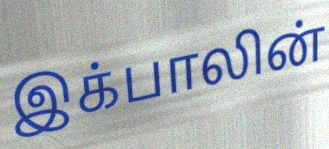
இக்பாலின்